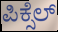
ಪಿಕ್ಸೆಲ್